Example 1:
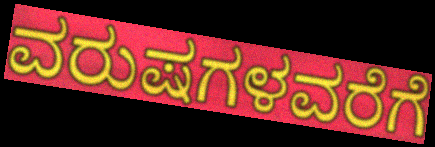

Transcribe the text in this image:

ವರುಷಗಳವರೆಗೆ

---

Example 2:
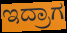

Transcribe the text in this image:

ಇದ್ರಾಗ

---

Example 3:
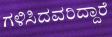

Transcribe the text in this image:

ಗಳಿಸಿದವರಿದ್ದಾರೆ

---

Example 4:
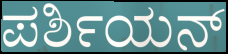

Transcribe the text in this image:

ಪರ್ಶಿಯನ್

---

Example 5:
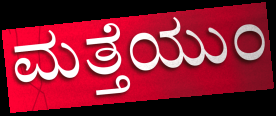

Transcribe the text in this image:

ಮತ್ತೆಯುಂ